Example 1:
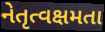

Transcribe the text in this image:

નેતૃત્વક્ષમતા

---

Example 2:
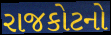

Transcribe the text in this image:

રાજકોટનો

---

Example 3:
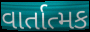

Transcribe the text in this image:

વાર્તાત્મક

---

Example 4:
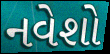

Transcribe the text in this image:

નવેશો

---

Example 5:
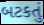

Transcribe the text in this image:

બટકતું